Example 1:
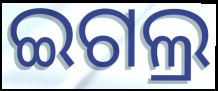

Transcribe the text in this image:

ଇଗଲ୍ର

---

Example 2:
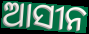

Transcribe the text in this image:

ଆସୀନ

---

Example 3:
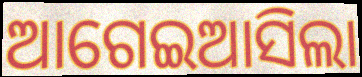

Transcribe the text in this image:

ଆଗେଇଆସିଲା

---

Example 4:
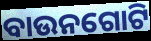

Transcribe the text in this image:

ବାଉନଗୋଟି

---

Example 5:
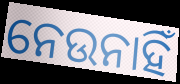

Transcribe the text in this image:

ନେଉନାହିଁ